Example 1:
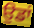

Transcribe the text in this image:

ਉਡਾਂ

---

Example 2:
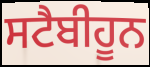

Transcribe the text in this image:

ਸਟੈਬੀਹੂਨ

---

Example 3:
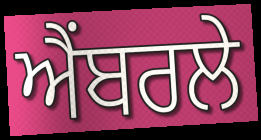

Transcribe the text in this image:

ਐਂਬਰਲੇ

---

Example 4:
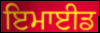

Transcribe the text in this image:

ਇਮਾਈਡ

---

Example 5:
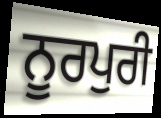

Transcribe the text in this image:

ਨੂਰਪੁਰੀ